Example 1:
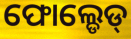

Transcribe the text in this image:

ଫୋଲ୍ଡେଡ୍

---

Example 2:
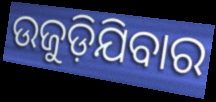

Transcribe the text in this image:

ଉଜୁଡ଼ିଯିବାର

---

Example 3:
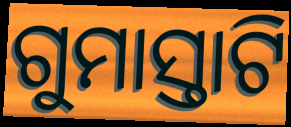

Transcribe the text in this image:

ଗୁମାସ୍ତାଟି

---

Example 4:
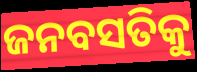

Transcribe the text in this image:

ଜନବସତିକୁ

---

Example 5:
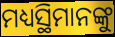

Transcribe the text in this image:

ମଧ୍ୟସ୍ଥିମାନଙ୍କୁ